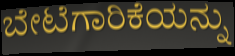
ಬೇಟೆಗಾರಿಕೆಯನ್ನು